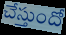
చేస్తుందో